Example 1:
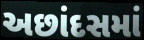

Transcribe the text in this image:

અછાંદસમાં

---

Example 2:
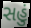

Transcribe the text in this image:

સહું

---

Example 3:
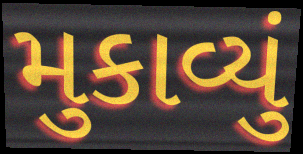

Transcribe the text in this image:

મુકાવ્યું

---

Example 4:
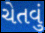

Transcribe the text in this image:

ચેતવું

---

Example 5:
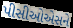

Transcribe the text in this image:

પીસીઓએસને